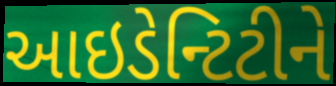
આઇડેન્ટિટીને